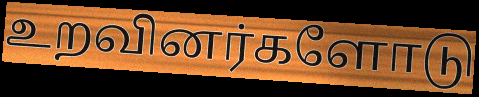
உறவினர்களோடு